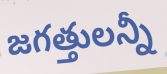
జగత్తులన్నీ